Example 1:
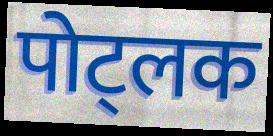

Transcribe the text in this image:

पोट्लक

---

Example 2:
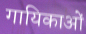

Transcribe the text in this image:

गायिकाओं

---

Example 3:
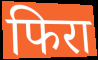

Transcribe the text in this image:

फिरा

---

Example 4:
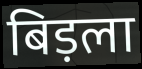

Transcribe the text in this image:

बिड़ला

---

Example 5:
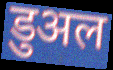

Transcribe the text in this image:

डुअल